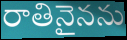
రాతినైనను